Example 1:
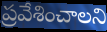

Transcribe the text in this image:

ప్రవేశించాలని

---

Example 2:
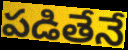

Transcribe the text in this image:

పడితేనే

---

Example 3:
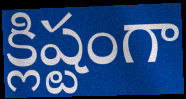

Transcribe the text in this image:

క్లిష్టంగా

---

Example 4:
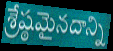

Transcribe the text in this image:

శ్రేష్ఠమైనదాన్ని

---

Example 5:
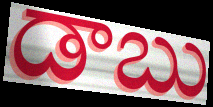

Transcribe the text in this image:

డాబు